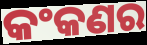
କଂକଣର